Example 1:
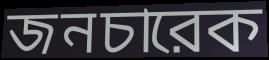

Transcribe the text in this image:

জনচারেক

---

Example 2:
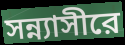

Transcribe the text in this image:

সন্ন্যাসীরে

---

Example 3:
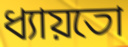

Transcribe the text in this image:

ধ্যায়তো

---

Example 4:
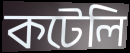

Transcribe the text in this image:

কটেলি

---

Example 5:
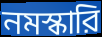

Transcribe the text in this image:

নমস্কারি